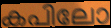
കപിലോ